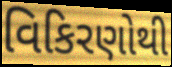
વિકિરણોથી